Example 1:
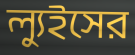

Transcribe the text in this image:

ল্যুইসের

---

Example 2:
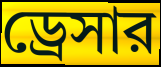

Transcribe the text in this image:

ড্রেসার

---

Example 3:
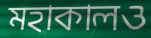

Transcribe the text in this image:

মহাকালও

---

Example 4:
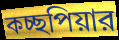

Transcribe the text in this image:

কচ্ছপিয়ার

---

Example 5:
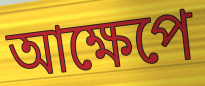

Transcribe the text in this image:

আক্ষেপে